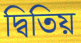
দ্বিতিয়